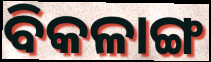
ବିକଳାଙ୍ଗ